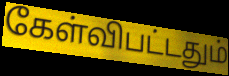
கேள்விபட்டதும்